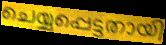
ചെയ്യപ്പെട്ടതായി